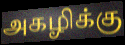
அகழிக்கு